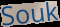
Souk